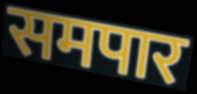
समपार